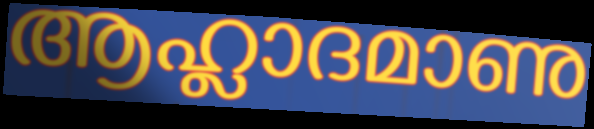
ആഹ്ലാദമാണു